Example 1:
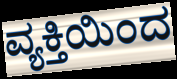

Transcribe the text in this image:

ವ್ಯಕ್ತಿಯಿಂದ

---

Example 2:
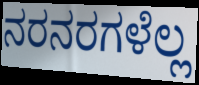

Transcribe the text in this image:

ನರನರಗಳೆಲ್ಲ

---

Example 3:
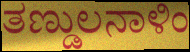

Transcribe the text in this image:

ತಣ್ಡುಲನಾಳಿಂ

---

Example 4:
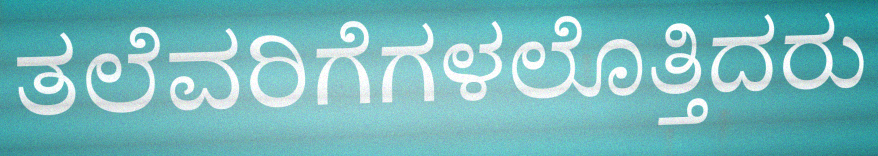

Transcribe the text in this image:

ತಲೆವರಿಗೆಗಳಲೊತ್ತಿದರು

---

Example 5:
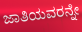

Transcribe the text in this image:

ಜಾತಿಯವರನ್ನೇ